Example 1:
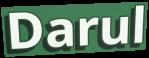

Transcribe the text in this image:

Darul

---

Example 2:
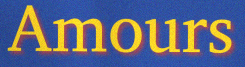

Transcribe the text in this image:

Amours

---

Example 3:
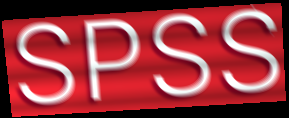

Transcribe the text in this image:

SPSS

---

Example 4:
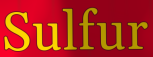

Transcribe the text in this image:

Sulfur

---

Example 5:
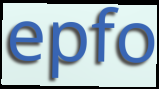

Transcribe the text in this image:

epfo